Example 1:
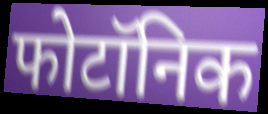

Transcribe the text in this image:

फोटॉनिक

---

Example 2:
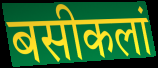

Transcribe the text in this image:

बसीकलां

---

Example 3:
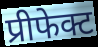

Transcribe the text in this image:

प्रीफेक्ट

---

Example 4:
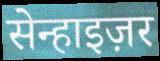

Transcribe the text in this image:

सेन्हाइज़र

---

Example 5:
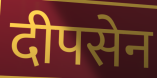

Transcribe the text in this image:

दीपसेन